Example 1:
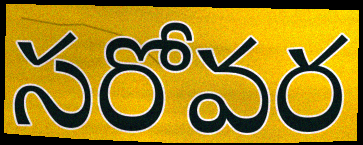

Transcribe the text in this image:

సరోవర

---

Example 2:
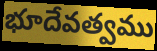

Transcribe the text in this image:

భూదేవత్వము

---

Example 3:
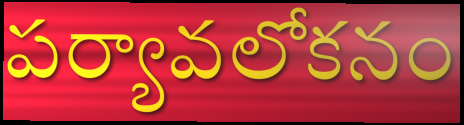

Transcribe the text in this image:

పర్యావలోకనం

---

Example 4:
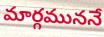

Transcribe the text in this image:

మార్గముననే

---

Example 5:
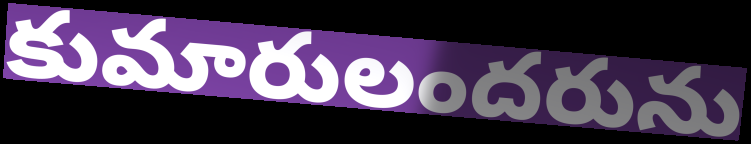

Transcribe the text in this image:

కుమారులందరును